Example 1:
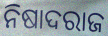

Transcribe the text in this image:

ନିଷାଦରାଜ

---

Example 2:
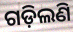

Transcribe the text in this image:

ଗଡ଼ିଲଣି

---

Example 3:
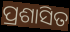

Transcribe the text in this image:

ପ୍ରଶାସିତ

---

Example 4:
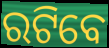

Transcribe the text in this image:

ରଟିବେ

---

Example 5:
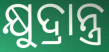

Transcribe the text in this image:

କ୍ଷୁଦ୍ରାନ୍ତ୍ର